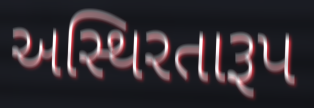
અસ્થિરતારૂપ